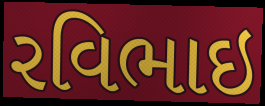
રવિભાઇ